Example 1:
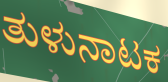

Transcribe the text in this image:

ತುಳುನಾಟಕ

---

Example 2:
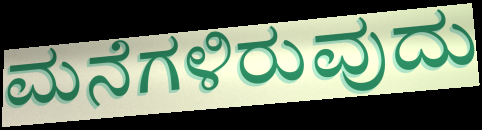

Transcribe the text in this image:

ಮನೆಗಳಿರುವುದು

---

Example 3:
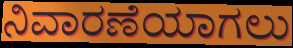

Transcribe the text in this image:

ನಿವಾರಣೆಯಾಗಲು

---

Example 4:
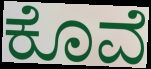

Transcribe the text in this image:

ಕೊವೆ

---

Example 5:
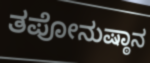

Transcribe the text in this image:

ತಪೋನುಷ್ಠಾನ